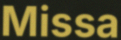
Missa